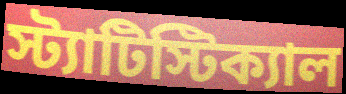
স্ট্যাটিস্টিক্যাল